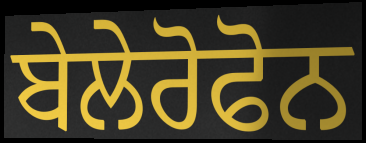
ਬੇਲੇਰੋਫੋਨ